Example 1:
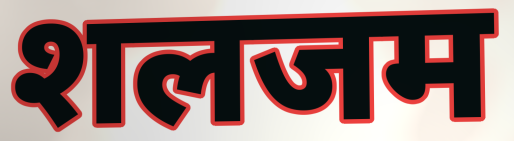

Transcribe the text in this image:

शलजम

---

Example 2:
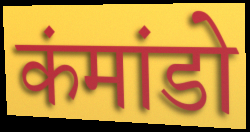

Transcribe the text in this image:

कंमांडो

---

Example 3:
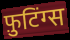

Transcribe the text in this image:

फ़ुटिंग्स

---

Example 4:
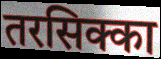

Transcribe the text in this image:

तरसिक्का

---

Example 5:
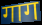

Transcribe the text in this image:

गाग